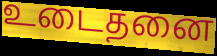
உடைதனை